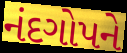
નંદગોપને